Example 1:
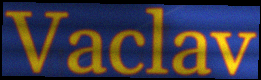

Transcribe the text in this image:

Vaclav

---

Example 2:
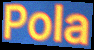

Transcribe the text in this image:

Pola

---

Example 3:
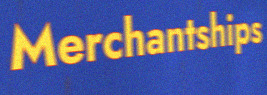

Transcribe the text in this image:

Merchantships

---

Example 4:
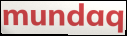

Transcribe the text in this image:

mundaq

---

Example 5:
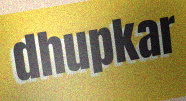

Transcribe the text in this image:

dhupkar